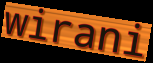
wirani